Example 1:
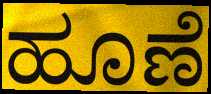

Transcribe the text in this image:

ಹೂಣೆ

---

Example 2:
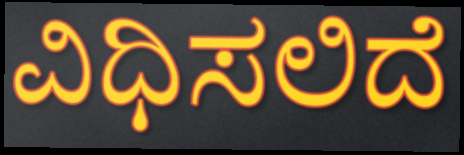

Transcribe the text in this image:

ವಿಧಿಸಲಿದೆ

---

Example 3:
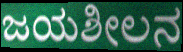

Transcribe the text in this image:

ಜಯಶೀಲನ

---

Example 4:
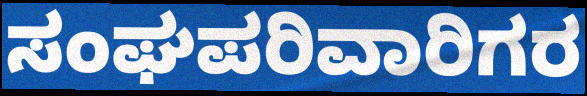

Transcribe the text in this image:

ಸಂಘಪರಿವಾರಿಗರ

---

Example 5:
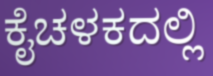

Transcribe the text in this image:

ಕೈಚಳಕದಲ್ಲಿ